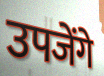
उपजेंगे